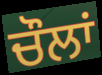
ਚੌਲਾਂ